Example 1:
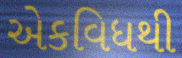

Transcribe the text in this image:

એકવિધથી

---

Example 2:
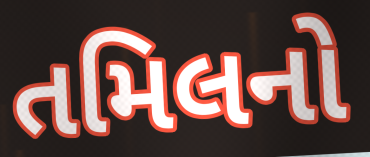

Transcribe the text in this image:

તમિલનો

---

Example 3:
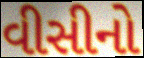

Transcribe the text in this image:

વીસીનો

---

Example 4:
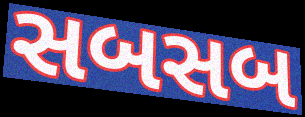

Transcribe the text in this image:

સબસબ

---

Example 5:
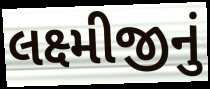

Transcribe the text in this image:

લક્ષ્મીજીનું